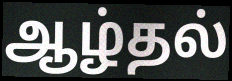
ஆழ்தல்